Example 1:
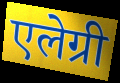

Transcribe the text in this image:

एलेग्री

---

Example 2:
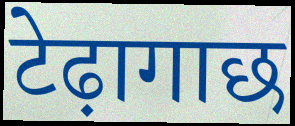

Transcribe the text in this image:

टेढ़ागाछ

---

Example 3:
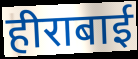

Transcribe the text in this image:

हीराबाई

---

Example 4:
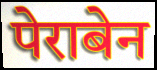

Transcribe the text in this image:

पेराबेन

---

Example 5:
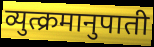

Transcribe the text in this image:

व्युत्क्रमानुपाती